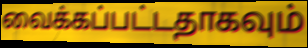
வைக்கப்பட்டதாகவும்